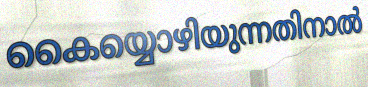
കൈയ്യൊഴിയുന്നതിനാൽ